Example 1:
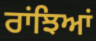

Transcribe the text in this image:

ਰਾਂਝਿਆਂ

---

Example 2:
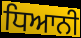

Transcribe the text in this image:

ਧਿਆਨੀ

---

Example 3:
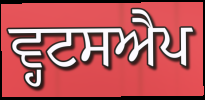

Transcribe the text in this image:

ਵ੍ਹਟਸਐਪ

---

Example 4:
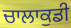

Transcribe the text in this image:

ਚਾਲਾਕੁਡੀ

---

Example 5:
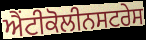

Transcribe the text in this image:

ਐਂਟੀਕੋਲੀਨਸਟਰੇਸ